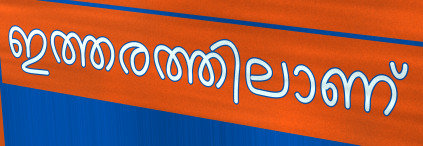
ഇത്തരത്തിലാണ്